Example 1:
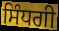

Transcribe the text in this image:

ਸਿੰਧਗੀ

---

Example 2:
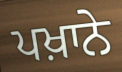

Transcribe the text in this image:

ਪਖ਼ਾਨੇ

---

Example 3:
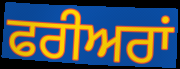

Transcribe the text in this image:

ਫਰੀਅਰਾਂ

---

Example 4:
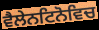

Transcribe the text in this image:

ਵੈਲੇਨਟਿਨੋਵਿਚ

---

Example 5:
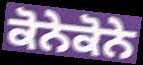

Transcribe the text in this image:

ਕੋਨੇਕੋਨੇ